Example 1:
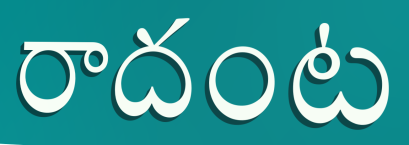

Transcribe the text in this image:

రాదంట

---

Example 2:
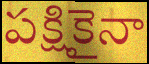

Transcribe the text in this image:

పక్షికైనా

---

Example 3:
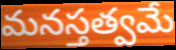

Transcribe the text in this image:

మనస్తత్వమే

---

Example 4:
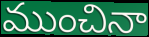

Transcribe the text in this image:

ముంచినా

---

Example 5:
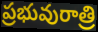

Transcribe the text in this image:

ప్రభువురాత్రి